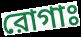
রোগাঃ